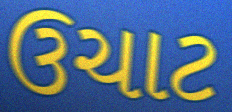
ઉચાટ